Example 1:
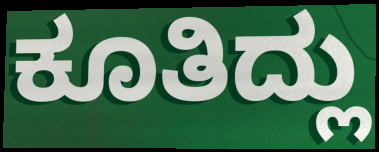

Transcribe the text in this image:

ಕೂತಿದ್ಲು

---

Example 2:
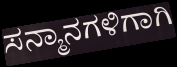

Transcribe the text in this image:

ಸನ್ಮಾನಗಳಿಗಾಗಿ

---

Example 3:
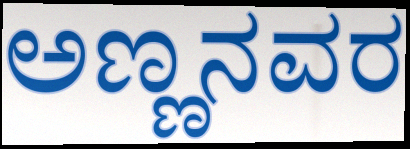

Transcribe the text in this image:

ಅಣ್ಣನವರ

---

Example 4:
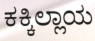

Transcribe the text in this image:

ಕಕ್ಕಿಲ್ಲಾಯ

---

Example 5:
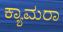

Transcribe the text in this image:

ಕ್ಯಾಮರಾ